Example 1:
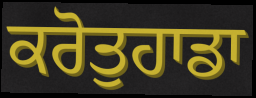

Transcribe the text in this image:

ਕਰੋਤੁਹਾਡਾ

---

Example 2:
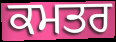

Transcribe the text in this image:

ਕਮਤਰ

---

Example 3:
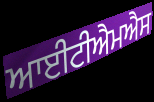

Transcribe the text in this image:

ਆਈਟੀਐਮਐਸ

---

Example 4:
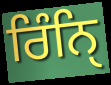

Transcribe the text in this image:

ਰਿੰਨਿੑ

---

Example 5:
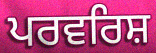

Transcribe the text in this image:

ਪਰਵਰਿਸ਼